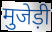
मुजेड़ी